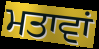
ਮਤਾਵਾਂ